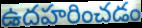
ఉదహరించడం